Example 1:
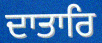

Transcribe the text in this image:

ਦਾਤਾਰਿ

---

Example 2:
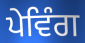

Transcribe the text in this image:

ਪੇਵਿੰਗ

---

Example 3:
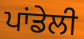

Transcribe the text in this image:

ਪਾਂਡੇਲੀ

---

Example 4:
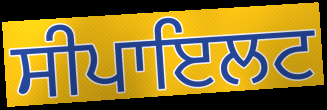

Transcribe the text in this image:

ਸੀਪਾਇਲਟ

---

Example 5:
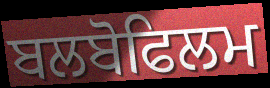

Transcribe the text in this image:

ਬਲਬੋਫਿਲਮ